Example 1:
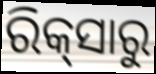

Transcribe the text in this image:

ରିକ୍‌ସାରୁ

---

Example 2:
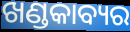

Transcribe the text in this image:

ଖଣ୍ଡକାବ୍ୟର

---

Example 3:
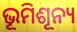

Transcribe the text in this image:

ଭୂମିଶୂନ୍ୟ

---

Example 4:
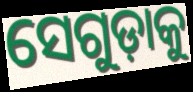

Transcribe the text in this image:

ସେଗୁଡ଼ାକୁ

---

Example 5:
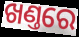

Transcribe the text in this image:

ଖଣ୍ତରେ